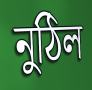
নুঠিল